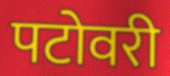
पटोवरी